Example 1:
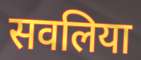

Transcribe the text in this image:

सवलिया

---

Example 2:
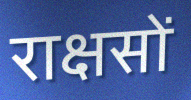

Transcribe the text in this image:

राक्षसों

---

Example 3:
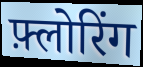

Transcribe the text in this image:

फ़्लोरिंग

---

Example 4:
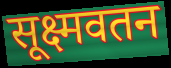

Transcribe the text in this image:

सूक्ष्मवतन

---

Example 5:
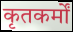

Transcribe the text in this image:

कृतकर्मों